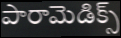
పారామెడిక్స్